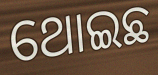
ଥୋଇଛ